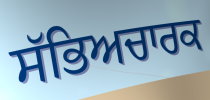
ਸੱਭਿਅਚਾਰਕ